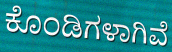
ಕೊಂಡಿಗಳಾಗಿವೆ